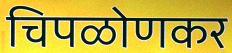
चिपळोणकर